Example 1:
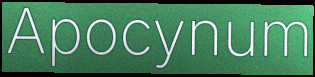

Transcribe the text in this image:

Apocynum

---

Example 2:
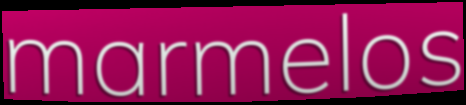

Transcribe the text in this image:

marmelos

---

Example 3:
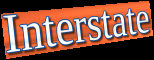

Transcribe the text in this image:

Interstate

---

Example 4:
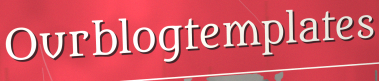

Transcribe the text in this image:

Ourblogtemplates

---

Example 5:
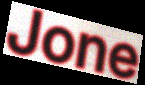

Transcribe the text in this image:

Jone